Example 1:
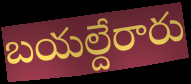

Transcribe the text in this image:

బయల్దేరారు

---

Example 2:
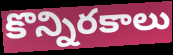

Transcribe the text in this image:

కొన్నిరకాలు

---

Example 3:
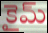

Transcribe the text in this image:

కైమ్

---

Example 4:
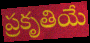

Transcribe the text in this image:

ప్రకృతియే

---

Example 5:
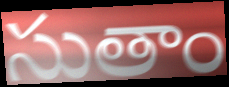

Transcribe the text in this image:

సుతాం